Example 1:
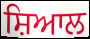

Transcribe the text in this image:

ਸ਼ਿਆਲ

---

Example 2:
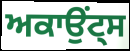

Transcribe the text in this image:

ਅਕਾਉਂਟ੍ਸ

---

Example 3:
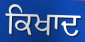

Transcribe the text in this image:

ਕਿਖਾਦ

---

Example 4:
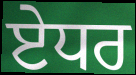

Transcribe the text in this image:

ਏਧਰ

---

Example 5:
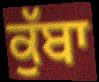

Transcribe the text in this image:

ਕੁੱਬਾ